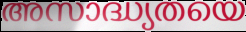
അസാദ്ധ്യതയെ